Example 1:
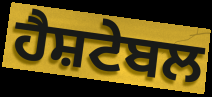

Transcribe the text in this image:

ਹੈਸ਼ਟੇਬਲ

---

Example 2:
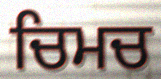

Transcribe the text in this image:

ਚਿਮਚ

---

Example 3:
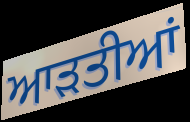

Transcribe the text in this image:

ਆੜਤੀਆਂ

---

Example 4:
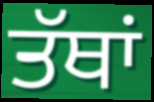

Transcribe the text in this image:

ਤੱਥਾਂ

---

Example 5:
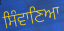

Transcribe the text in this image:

ਸਿੰਵਾਣਿਆ